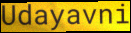
Udayavni